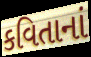
કવિતાનાં